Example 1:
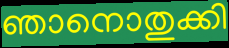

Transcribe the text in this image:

ഞാനൊതുക്കി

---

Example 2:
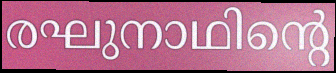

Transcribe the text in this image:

രഘുനാഥിന്റെ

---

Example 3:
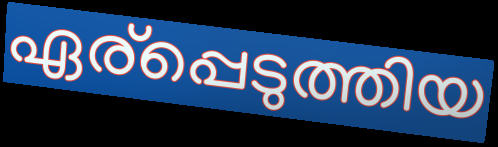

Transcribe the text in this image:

ഏര്പ്പെടുത്തിയ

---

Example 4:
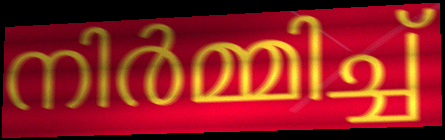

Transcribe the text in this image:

നിർമ്മിച്ച്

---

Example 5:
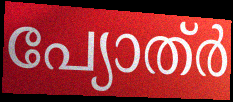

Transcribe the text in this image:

പ്യോത്ർ